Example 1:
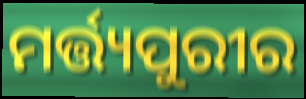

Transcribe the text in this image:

ମର୍ତ୍ତ୍ୟପୁରୀର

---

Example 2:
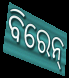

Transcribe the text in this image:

ବିରେନ୍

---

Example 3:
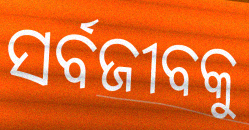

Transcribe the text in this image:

ସର୍ବଜୀବକୁ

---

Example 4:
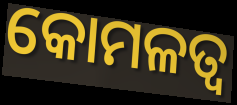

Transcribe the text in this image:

କୋମଳତ୍ୱ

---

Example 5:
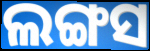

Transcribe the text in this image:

ଲଙ୍ଗସ